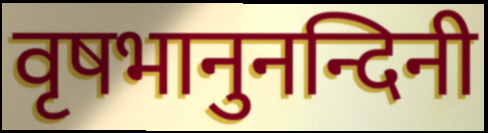
वृषभानुनन्दिनी